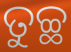
ତୁଚ୍ଛ